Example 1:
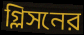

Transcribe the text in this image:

গ্লিসনের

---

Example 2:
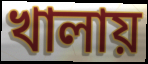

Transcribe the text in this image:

খালায়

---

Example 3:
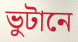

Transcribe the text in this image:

ভুটানে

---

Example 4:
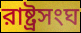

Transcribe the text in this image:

রাষ্ট্রসংঘ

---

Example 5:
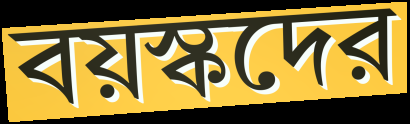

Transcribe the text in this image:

বয়স্কদের